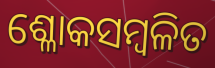
ଶ୍ଳୋକସମ୍ବଳିତ